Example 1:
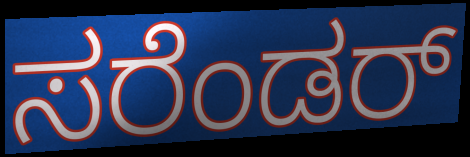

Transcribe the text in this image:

ಸರೆಂಡರ್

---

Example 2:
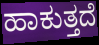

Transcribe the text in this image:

ಹಾಕುತ್ತದೆ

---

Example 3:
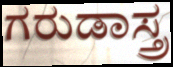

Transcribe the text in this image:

ಗರುಡಾಸ್ತ್ರ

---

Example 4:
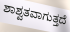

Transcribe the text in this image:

ಶಾಶ್ವತವಾಗುತ್ತದೆ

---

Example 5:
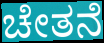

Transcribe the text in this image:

ಚೇತನೆ